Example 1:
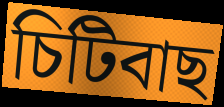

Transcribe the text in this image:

চিটিবাছ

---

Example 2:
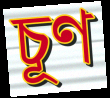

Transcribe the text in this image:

চূণ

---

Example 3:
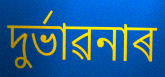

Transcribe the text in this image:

দুৰ্ভাৱনাৰ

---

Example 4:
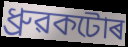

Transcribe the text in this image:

ধ্ৰুৱকটোৰ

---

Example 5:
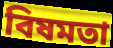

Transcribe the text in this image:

বিষমতা